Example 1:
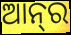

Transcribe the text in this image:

ଆନ୍‌ର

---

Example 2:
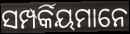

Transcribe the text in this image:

ସମ୍ପର୍କିୟମାନେ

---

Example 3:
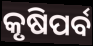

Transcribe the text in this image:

କୃଷିପର୍ବ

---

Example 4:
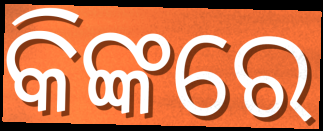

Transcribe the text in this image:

କିଙ୍କରେ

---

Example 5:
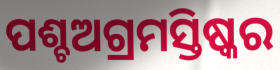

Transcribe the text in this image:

ପଶ୍ଚଅଗ୍ରମସ୍ତିଷ୍କର